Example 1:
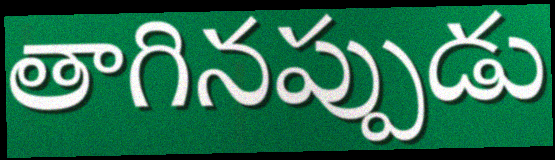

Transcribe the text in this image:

తాగినప్పుడు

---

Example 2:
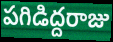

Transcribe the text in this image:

పగిడిద్దరాజు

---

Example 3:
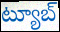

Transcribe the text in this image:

ట్యూబ్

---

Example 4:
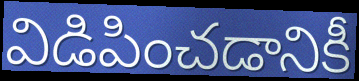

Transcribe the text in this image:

విడిపించడానికీ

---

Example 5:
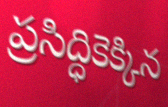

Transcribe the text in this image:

ప్రసిద్ధికెక్కిన